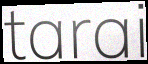
tarai